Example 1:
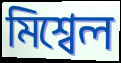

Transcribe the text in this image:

মিশ্বেল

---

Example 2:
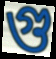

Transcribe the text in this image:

গু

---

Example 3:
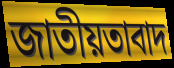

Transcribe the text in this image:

জাতীয়তাবাদ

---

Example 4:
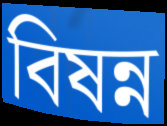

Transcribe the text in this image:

বিষন্ন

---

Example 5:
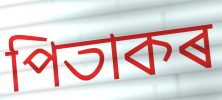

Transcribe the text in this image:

পিতাকৰ